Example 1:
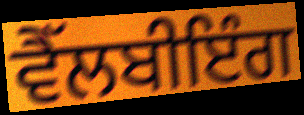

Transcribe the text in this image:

ਵੈੱਲਬੀਇੰਗ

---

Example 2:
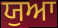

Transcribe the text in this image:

ਯੁਆ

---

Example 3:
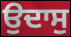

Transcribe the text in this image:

ਉਦਾਸੁ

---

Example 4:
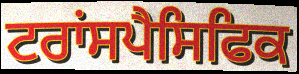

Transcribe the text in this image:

ਟਰਾਂਸਪੈਸਿਫਿਕ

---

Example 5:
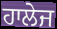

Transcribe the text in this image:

ਹਾਲੇਜ